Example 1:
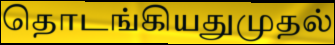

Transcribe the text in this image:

தொடங்கியதுமுதல்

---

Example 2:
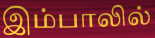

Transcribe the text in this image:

இம்பாலில்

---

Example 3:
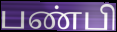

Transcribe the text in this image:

பண்பி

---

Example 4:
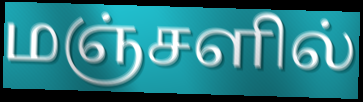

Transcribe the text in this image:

மஞ்சளில்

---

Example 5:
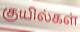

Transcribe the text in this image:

குயில்கள்